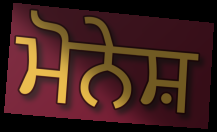
ਮੋਨੇਸ਼